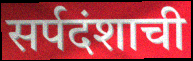
सर्पदंशाची